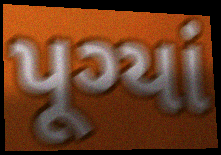
પૂગ્યાં